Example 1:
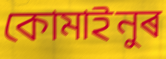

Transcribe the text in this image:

কোমাইনুৰ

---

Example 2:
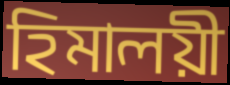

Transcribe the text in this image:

হিমালয়ী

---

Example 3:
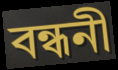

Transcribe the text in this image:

বন্ধনী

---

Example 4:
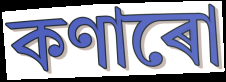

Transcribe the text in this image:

কণাৰো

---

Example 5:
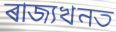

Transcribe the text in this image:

ৰাজ্যখনত